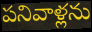
పనివాళ్లను